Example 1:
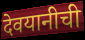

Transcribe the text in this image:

देवयानीची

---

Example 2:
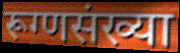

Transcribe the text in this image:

रूग्णसंख्या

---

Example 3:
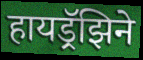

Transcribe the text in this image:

हायड्रॅझिने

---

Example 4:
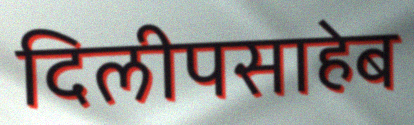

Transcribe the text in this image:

दिलीपसाहेब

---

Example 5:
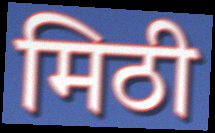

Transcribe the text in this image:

मिठी